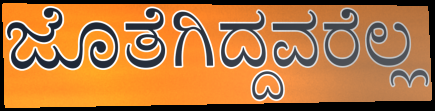
ಜೊತೆಗಿದ್ದವರೆಲ್ಲ